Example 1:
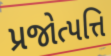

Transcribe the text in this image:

પ્રજોત્પત્તિ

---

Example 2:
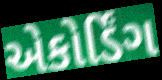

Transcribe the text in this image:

એકોર્ડિંગ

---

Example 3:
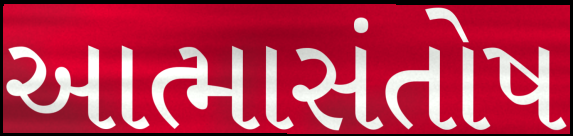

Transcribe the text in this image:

આત્માસંતોષ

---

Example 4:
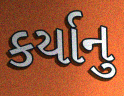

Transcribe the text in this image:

કર્યાનુ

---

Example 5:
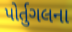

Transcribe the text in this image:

પોર્તુગલના